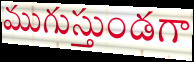
ముగుస్తుండగా